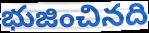
భుజించినది